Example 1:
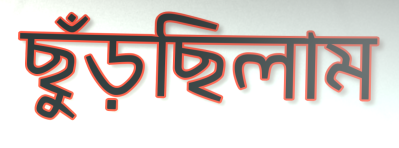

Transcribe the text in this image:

ছুঁড়ছিলাম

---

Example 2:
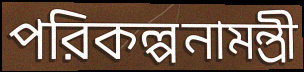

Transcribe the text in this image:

পরিকল্পনামন্ত্রী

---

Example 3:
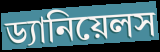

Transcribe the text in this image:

ড্যানিয়েলস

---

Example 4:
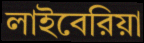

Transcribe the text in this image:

লাইবেরিয়া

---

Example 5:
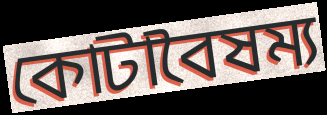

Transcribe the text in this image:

কোটাবৈষম্য